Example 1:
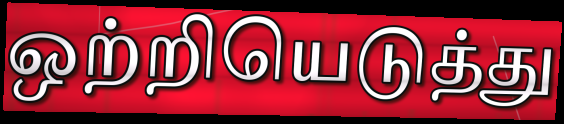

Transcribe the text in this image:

ஒற்றியெடுத்து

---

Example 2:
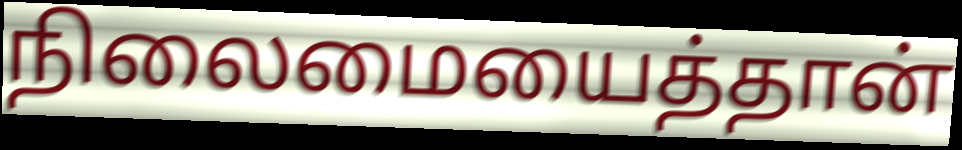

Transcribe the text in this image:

நிலைமையைத்தான்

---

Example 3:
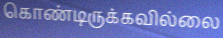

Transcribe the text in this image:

கொண்டிருக்கவில்லை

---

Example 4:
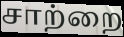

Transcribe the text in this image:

சாற்றை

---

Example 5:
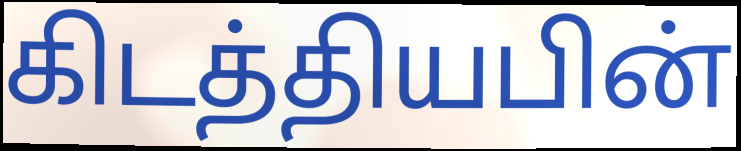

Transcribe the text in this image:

கிடத்தியபின்